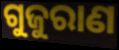
ଗୁଜୁରାଣ